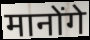
मानोंगे